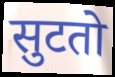
सुटतो